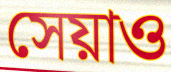
সেয়াও